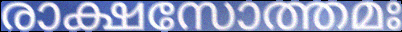
രാക്ഷസോത്തമഃ